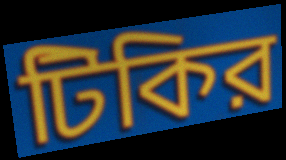
টিকির